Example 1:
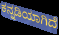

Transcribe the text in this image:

ಕನ್ನಡಿಯಾಗಿದೆ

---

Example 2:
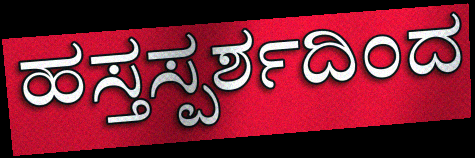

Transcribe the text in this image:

ಹಸ್ತಸ್ಪರ್ಶದಿಂದ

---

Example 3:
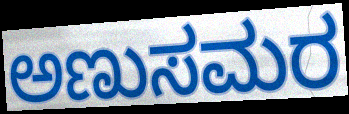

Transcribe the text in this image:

ಅಣುಸಮರ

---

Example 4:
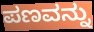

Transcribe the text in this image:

ಪಣವನ್ನು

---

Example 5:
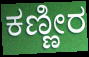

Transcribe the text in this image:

ಕಣ್ಣೀರ